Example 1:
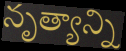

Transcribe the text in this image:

నృత్యాన్ని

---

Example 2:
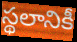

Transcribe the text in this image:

స్థలానికీ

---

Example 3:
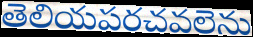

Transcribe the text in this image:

తెలియపరచవలెను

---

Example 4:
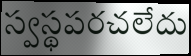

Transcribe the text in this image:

స్వస్థపరచలేదు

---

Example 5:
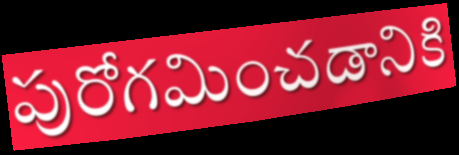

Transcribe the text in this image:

పురోగమించడానికి